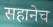
सहानेच